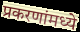
प्रकरणांमध्ये